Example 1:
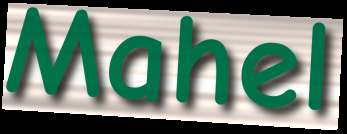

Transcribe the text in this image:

Mahel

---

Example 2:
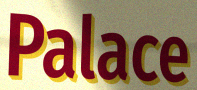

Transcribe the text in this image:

Palace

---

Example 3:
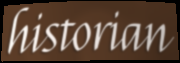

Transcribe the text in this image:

historian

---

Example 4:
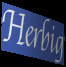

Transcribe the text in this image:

Herbig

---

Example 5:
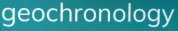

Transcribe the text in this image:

geochronology